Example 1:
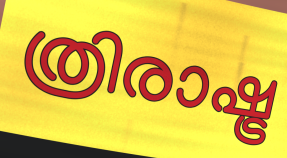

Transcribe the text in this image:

ത്രിരാഷ്ട്ര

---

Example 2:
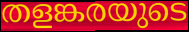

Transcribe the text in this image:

തളങ്കരയുടെ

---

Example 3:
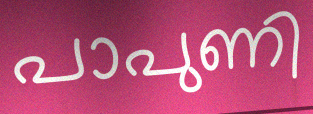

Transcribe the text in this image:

പാപുണി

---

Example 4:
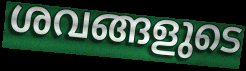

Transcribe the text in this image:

ശവങ്ങളുടെ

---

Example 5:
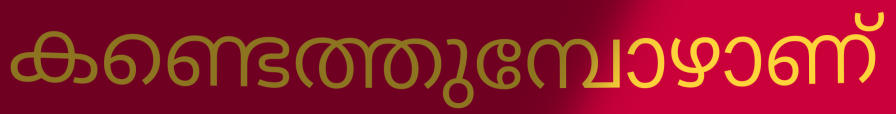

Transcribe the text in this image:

കണ്ടെത്തുമ്പോഴാണ്